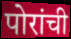
पोरांची